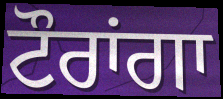
ਟੌਰਾਂਗਾ